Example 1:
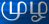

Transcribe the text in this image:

முழ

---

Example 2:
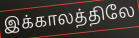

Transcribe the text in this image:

இக்காலத்திலே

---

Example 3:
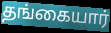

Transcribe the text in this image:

தங்கையார்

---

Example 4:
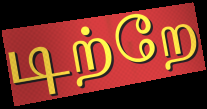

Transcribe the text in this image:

டிற்றே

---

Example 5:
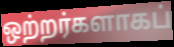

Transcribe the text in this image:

ஒற்றர்களாகப்